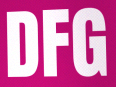
DFG